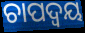
ଚାପଦ୍ଵୟ